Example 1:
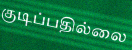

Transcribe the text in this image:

குடிப்பதில்லை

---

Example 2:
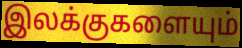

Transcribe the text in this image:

இலக்குகளையும்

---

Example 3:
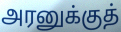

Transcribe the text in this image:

அரனுக்குத்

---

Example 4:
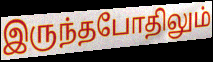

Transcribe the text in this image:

இருந்தபோதிலும்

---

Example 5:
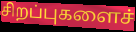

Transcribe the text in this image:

சிறப்புகளைச்